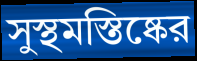
সুস্থমস্তিষ্কের